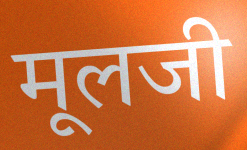
मूलजी